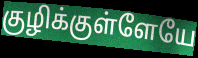
குழிக்குள்ளேயே